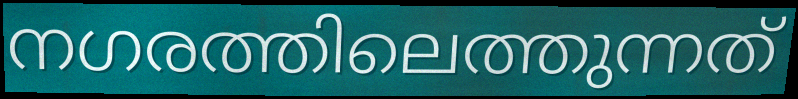
നഗരത്തിലെത്തുന്നത്